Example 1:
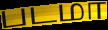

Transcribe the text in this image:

படமா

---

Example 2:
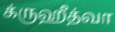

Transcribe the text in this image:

க்ருஹீத்வா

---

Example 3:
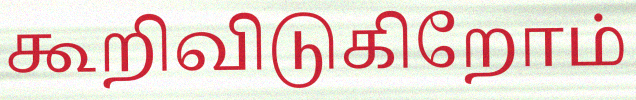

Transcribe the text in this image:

கூறிவிடுகிறோம்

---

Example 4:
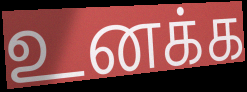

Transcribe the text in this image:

உனக்க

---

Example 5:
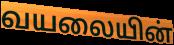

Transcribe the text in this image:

வயலையின்